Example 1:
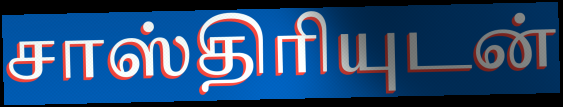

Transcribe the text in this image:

சாஸ்திரியுடன்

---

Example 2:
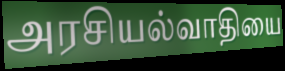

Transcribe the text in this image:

அரசியல்வாதியை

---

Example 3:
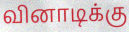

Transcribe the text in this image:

வினாடிக்கு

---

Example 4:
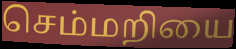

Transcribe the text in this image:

செம்மறியை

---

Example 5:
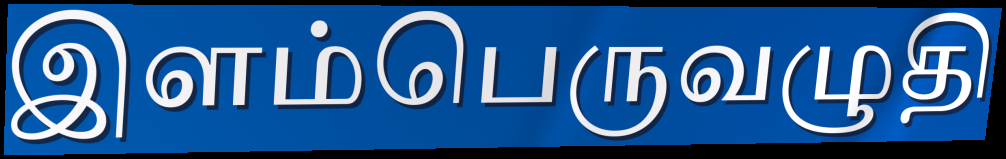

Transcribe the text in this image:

இளம்பெருவழுதி